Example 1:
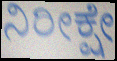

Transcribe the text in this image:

ನಿರೀಕ್ಷೇ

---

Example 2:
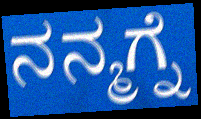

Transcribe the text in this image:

ನನ್ಮಗ್ನೆ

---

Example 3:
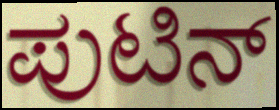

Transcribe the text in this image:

ಪುಟಿನ್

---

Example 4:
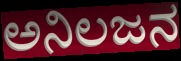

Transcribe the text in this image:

ಅನಿಲಜನ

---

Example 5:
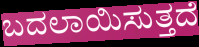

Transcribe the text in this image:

ಬದಲಾಯಿಸುತ್ತದೆ